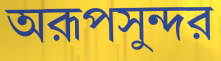
অরূপসুন্দর